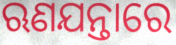
ଋଣଯନ୍ତାରେ